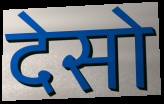
देसो